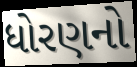
ધોરણનો